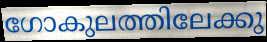
ഗോകുലത്തിലേക്കു